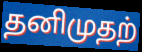
தனிமுதற்